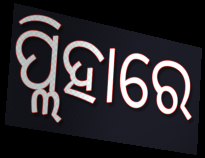
ପ୍ଲିହାରେ